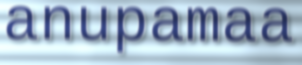
anupamaa